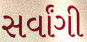
સર્વાંગી